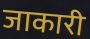
जाकारी